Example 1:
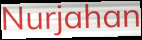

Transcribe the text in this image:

Nurjahan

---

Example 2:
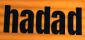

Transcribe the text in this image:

hadad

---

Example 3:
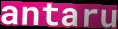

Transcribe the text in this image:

antaru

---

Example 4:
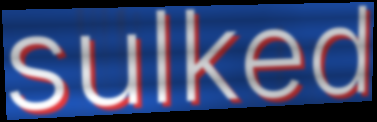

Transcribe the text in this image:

sulked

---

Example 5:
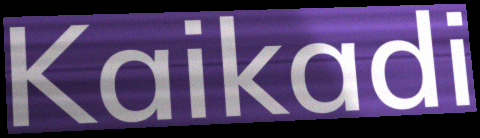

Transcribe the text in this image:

Kaikadi